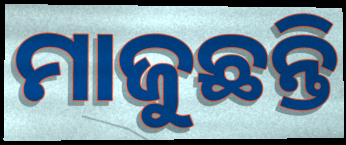
ମାଜୁଛନ୍ତି